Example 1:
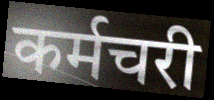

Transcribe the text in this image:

कर्मचरी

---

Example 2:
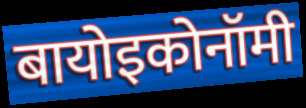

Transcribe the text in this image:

बायोइकोनॉमी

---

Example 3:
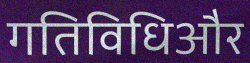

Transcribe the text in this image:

गतिविधिऔर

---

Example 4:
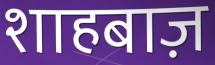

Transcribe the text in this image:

शाहबाज़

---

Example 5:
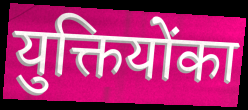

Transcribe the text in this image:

युक्तियोंका